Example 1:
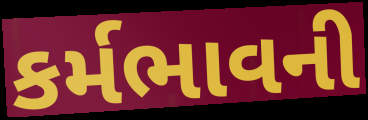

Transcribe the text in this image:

કર્મભાવની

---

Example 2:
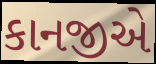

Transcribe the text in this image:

કાનજીએ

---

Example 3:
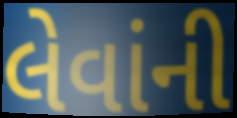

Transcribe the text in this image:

લેવાંની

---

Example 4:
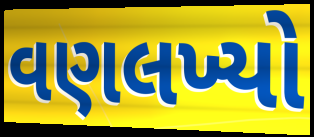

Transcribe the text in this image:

વણલખ્યો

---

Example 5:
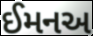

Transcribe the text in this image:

ઈમનઅ